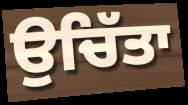
ਉਚਿੱਤਾ